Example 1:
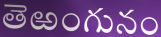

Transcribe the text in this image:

తెఱంగునం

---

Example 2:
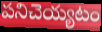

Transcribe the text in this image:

పనిచెయ్యటం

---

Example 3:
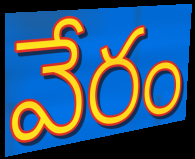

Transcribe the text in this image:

వేరం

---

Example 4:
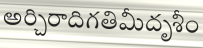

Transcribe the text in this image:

అర్చిరాదిగతిమీదృశీం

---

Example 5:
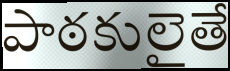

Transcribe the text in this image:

పాఠకులైతే